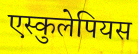
एस्कुलेपियस